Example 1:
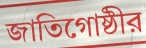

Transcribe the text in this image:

জাতিগোষ্ঠীর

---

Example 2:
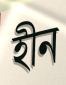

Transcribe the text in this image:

হীন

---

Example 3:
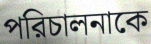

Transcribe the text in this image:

পরিচালনাকে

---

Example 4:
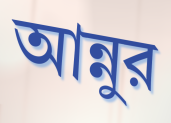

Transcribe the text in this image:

আন্নুর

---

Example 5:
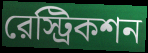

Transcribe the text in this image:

রেস্ট্রিকশন